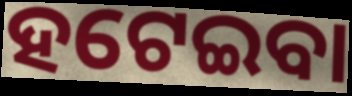
ହଟେଇବା